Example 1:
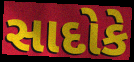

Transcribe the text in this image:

સાદોકે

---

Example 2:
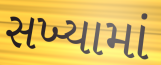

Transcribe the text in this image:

સખ્યામાં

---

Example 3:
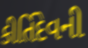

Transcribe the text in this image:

કીર્તિદેવની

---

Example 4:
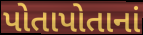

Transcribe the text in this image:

પોતાપોતાનાં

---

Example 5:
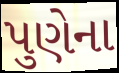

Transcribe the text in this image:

પુણેના